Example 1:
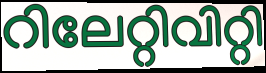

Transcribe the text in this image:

റിലേറ്റിവിറ്റി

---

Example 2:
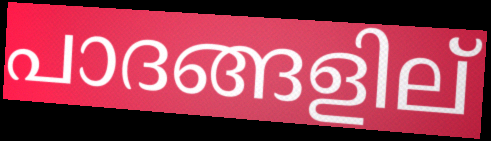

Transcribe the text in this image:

പാദങ്ങളില്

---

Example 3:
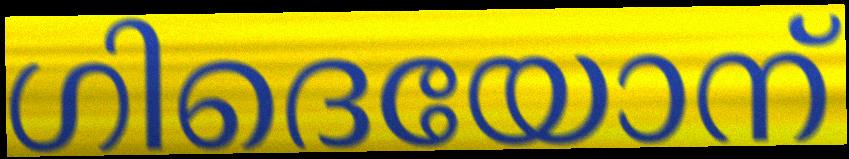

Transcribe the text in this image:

ഗിദെയോന്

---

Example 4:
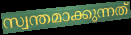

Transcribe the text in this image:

സ്വന്തമാക്കുന്നത്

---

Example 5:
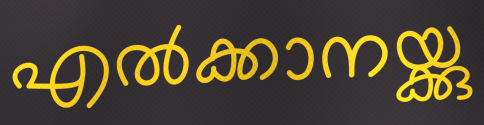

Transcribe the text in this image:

എൽക്കാനയ്ക്കു